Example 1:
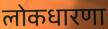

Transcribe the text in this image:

लोकधारणा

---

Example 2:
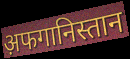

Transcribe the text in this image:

अ़फगानिस्तान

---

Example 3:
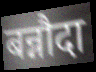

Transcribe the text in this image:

बन्नौदा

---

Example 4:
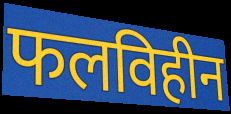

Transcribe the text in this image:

फलविहीन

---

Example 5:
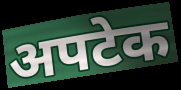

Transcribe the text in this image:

अपटेक